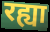
रह्या